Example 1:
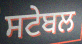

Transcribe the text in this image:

ਸਟੇਬਲ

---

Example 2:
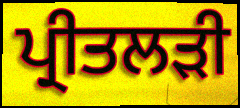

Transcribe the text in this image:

ਪ੍ਰੀਤਲੜੀ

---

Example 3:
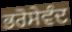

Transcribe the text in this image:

ਭਰੋਸੇਵੰਦ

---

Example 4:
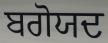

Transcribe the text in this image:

ਬਗੋਯਦ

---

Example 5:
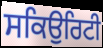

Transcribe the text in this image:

ਸਕਿਉਰਿਟੀ